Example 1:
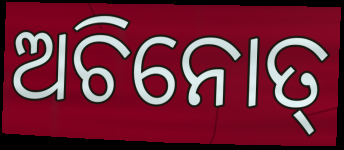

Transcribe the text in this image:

ଅଚିନୋତ୍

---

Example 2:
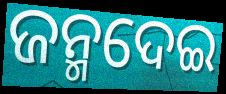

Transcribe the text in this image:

ଜନ୍ମଦେଇ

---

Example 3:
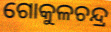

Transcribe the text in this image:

ଗୋକୁଳଚନ୍ଦ୍ର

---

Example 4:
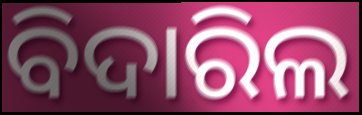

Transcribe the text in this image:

ବିଦାରିଲ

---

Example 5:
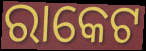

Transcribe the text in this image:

ରାକେଟ